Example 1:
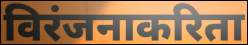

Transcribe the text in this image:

विरंजनाकरिता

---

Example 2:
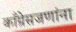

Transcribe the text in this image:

काँग्रेसजणांना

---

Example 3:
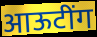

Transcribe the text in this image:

आऊटींग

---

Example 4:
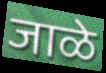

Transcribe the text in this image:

जाळे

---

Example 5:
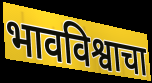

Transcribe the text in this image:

भावविश्वाचा